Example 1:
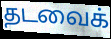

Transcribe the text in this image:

தடவைக்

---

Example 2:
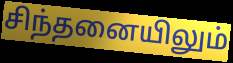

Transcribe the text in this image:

சிந்தனையிலும்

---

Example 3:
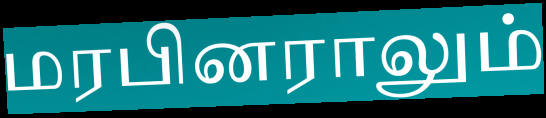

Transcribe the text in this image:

மரபினராலும்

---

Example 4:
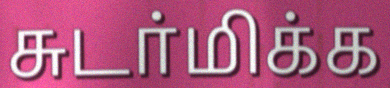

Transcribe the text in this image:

சுடர்மிக்க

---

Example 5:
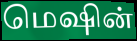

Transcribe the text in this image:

மெஷின்